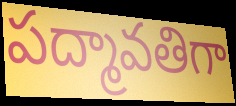
పద్మావతిగా